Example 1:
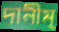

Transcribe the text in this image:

দানীম্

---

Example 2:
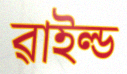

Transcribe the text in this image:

ৱাইল্ড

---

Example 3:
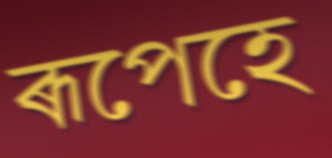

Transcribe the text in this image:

ৰূপেহে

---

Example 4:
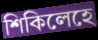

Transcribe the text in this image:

শিকিলেহে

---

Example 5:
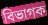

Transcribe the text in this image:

বিভাগক